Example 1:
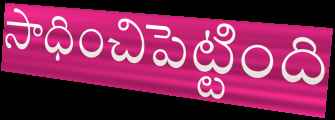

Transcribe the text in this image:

సాధించిపెట్టింది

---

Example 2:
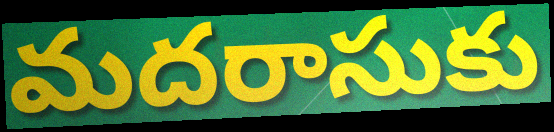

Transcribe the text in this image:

మదరాసుకు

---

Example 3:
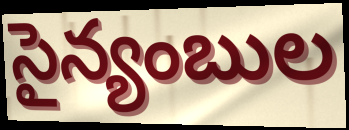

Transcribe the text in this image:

సైన్యంబుల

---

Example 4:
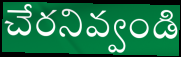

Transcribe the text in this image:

చేరనివ్వండి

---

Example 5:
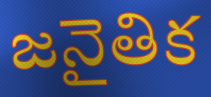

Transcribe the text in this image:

జనైతిక